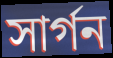
সার্গন